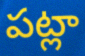
పట్లా